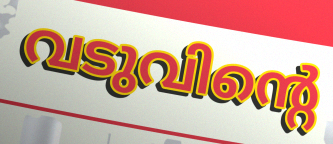
വടുവിന്റെ